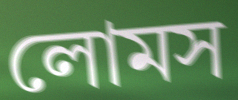
লোমস